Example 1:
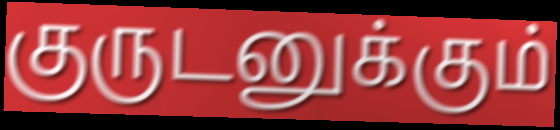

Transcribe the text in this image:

குருடனுக்கும்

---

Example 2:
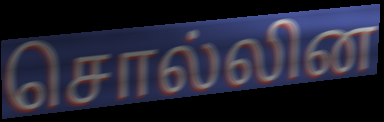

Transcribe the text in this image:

சொல்லின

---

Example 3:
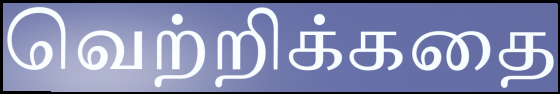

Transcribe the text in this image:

வெற்றிக்கதை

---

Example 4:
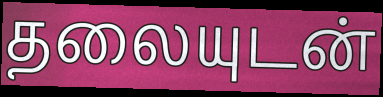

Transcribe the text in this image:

தலையுடன்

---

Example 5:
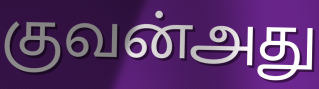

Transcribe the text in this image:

குவன்அது